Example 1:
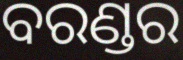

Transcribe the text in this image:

ବରଣ୍ଡର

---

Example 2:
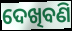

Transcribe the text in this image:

ଦେଖିବଣି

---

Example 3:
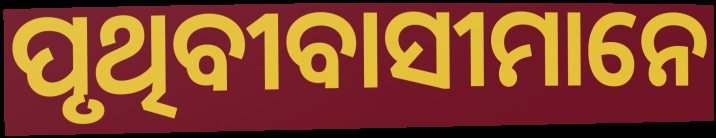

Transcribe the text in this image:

ପୃଥିବୀବାସୀମାନେ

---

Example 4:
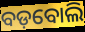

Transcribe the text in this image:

ବଡ଼ବୋଲି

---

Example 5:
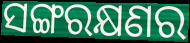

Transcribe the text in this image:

ସଙ୍ଗରକ୍ଷଣର